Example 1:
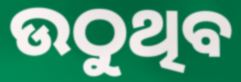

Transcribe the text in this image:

ଉଠୁଥିବ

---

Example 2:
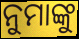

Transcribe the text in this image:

ନୁମାଙ୍କୁ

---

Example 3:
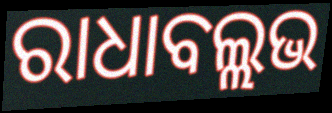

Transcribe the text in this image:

ରାଧାବଲ୍ଲଭ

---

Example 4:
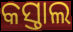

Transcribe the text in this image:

କସ୍ତାଲ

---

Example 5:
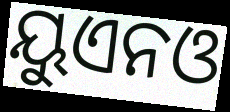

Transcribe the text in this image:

ୟୁଏନଓ